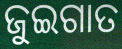
ଜୁଇଗାତ